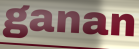
ganan